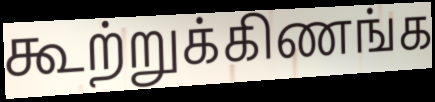
கூற்றுக்கிணங்க